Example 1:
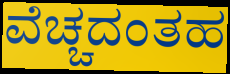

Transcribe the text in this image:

ವೆಚ್ಚದಂತಹ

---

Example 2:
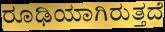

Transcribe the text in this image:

ರೂಢಿಯಾಗಿರುತ್ತದೆ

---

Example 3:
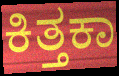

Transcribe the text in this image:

ಕಿತ್ತಕಾ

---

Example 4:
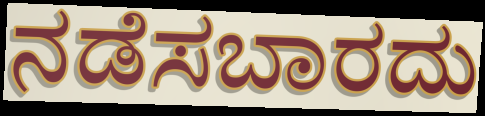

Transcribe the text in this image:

ನಡೆಸಬಾರದು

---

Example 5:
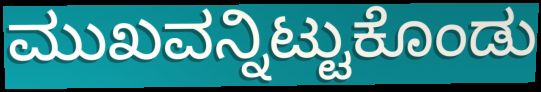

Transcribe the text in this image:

ಮುಖವನ್ನಿಟ್ಟುಕೊಂಡು